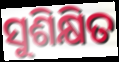
ସୁଶିକ୍ଷିତ